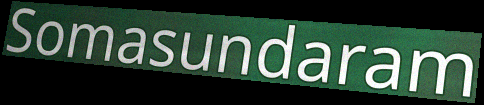
Somasundaram